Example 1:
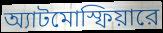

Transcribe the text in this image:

অ্যাটমোস্ফিয়ারে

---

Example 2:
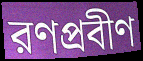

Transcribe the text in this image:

রণপ্রবীণ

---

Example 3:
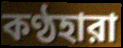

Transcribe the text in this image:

কণ্ঠহারা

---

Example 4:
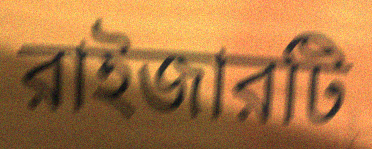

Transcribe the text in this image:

রাইজারটি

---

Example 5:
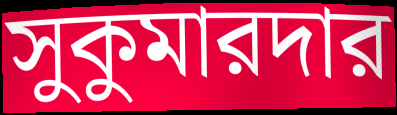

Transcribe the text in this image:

সুকুমারদার